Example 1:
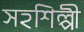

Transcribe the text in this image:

সহশিল্পী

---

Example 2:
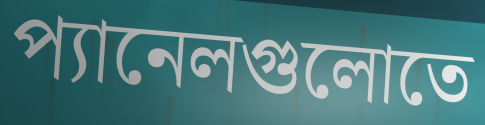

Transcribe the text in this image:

প্যানেলগুলোতে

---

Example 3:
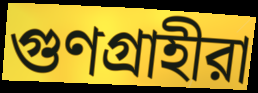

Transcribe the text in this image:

গুণগ্রাহীরা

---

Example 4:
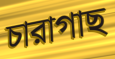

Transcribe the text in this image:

চারাগাছ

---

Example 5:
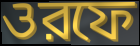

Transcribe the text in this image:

ওরফে